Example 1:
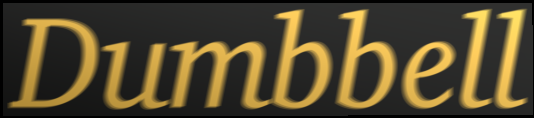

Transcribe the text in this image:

Dumbbell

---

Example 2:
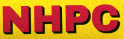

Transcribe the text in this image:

NHPC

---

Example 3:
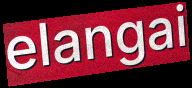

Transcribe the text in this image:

elangai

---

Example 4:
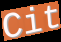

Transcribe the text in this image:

Cit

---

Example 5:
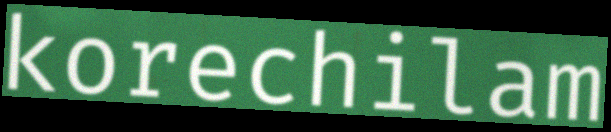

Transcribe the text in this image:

korechilam